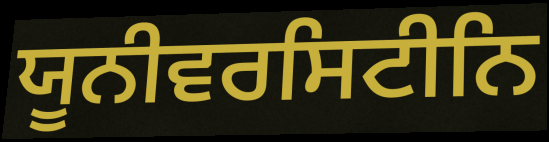
ਯੂਨੀਵਰਸਿਟੀਨਿ